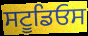
ਸਟੂਡਿਓਸ